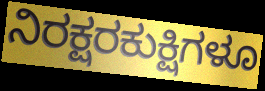
ನಿರಕ್ಷರಕುಕ್ಷಿಗಳೂ